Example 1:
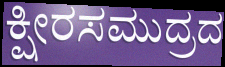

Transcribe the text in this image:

ಕ್ಷೀರಸಮುದ್ರದ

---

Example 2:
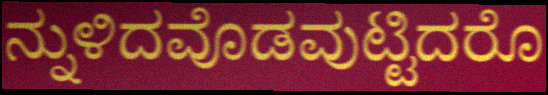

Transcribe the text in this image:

ನ್ನುಳಿದವೊಡವುಟ್ಟಿದರೊ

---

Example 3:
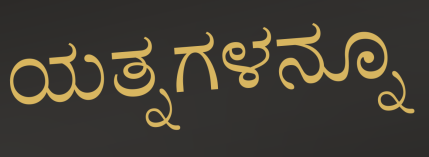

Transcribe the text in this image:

ಯತ್ನಗಳನ್ನೂ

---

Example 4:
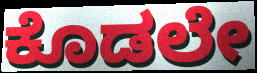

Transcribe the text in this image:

ಕೊಡಲೇ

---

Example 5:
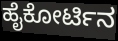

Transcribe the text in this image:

ಹೈಕೋರ್ಟಿನ